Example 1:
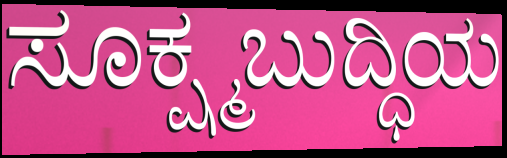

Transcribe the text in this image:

ಸೂಕ್ಷ್ಮಬುದ್ಧಿಯ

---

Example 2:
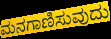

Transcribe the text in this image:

ಮನಗಾಣಿಸುವುದು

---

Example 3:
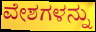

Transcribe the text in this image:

ವೇಶಗಳನ್ನು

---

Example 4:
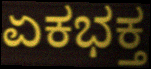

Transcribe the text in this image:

ಏಕಭಕ್ತ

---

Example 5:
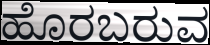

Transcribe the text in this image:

ಹೊರಬರುವ